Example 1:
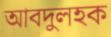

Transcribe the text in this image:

আবদুলহক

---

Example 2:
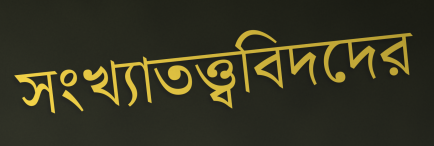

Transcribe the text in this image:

সংখ্যাতত্ত্ববিদদের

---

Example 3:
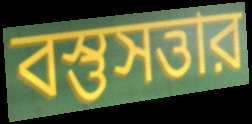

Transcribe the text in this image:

বস্তুসত্তার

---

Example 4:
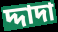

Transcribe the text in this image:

দ্দাদা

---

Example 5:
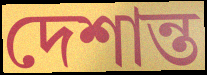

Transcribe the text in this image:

দেশান্ত